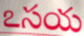
ఽసయ